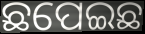
ଛପେଇଛ